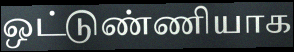
ஒட்டுண்ணியாக